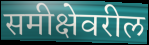
समीक्षेवरील